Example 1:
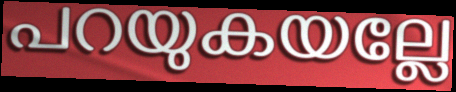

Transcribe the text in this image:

പറയുകയല്ലേ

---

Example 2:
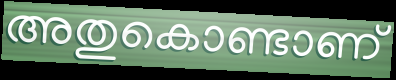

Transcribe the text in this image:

അതുകൊണ്ടാണ്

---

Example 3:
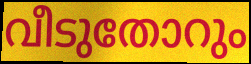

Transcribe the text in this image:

വീടുതോറും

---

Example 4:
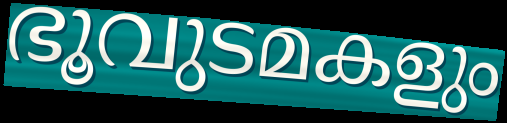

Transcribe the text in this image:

ഭൂവുടമകളും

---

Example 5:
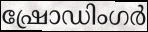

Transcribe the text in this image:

ഷ്രോഡിംഗർ